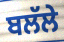
ਬਲੱਲੇ